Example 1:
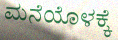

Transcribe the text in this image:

ಮನೆಯೊಳಕ್ಕೆ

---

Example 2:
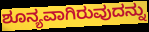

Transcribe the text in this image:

ಶೂನ್ಯವಾಗಿರುವುದನ್ನು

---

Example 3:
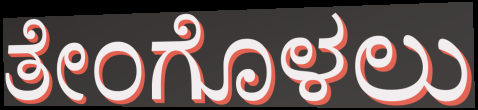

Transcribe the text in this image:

ತೇಂಗೊಳಲು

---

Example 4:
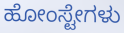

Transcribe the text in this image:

ಹೋಂಸ್ಟೇಗಳು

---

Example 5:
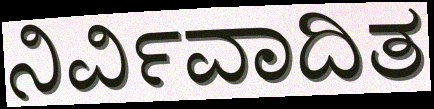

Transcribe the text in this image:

ನಿರ್ವಿವಾದಿತ